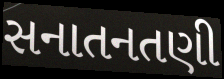
સનાતનતણી